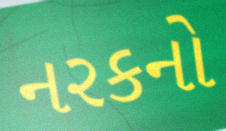
નરકનો